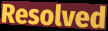
Resolved